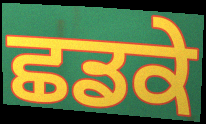
ਛਡਕੇ